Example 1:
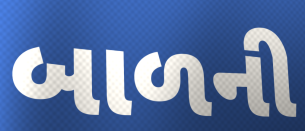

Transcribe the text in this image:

બાળની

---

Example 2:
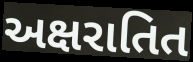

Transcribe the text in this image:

અક્ષરાતિત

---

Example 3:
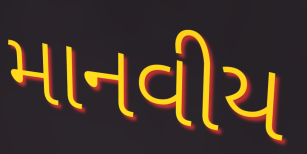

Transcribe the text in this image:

માનવીય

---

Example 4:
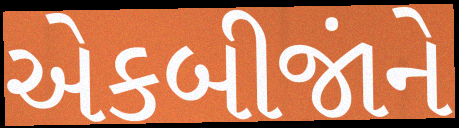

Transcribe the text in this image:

એકબીજાંને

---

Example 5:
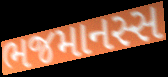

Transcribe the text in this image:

ભજમાનસ્સ